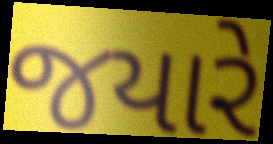
જયારે